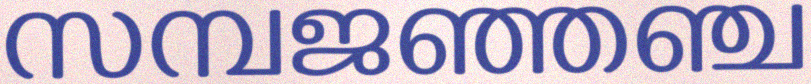
സമ്പജഞ്ഞഞ്ച